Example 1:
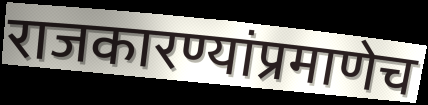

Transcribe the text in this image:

राजकारण्यांप्रमाणेच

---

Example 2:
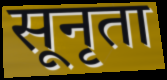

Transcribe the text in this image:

सूनृता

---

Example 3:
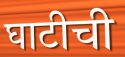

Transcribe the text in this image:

घाटीची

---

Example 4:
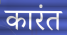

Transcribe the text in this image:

कारंत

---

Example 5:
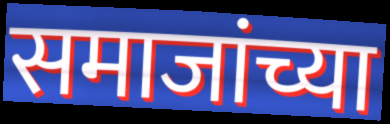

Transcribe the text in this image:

समाजांच्या